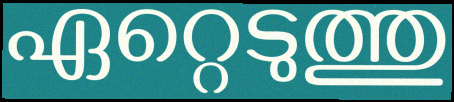
ഏറ്റെടുത്തു